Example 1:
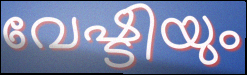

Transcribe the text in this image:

വേഷ്ടിയും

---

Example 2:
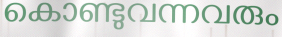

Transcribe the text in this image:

കൊണ്ടുവന്നവരും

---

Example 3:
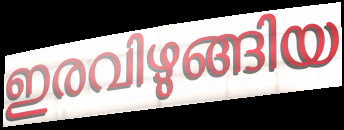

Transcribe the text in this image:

ഇരവിഴുങ്ങിയ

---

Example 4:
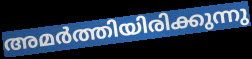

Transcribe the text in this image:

അമർത്തിയിരിക്കുന്നു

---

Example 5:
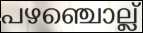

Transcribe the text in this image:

പഴഞ്ചൊല്ല്